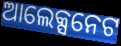
ଆଲେକ୍ସନେଟ